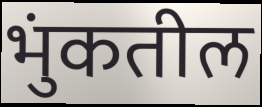
भुंकतील